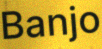
Banjo